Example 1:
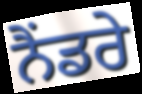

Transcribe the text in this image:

ਨੈਂਡਰੇ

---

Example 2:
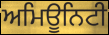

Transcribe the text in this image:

ਅਮਿਊਨਿਟੀ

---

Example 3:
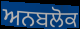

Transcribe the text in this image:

ਅਨਬਲੋਕ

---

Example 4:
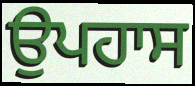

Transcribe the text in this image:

ਉਪਹਾਸ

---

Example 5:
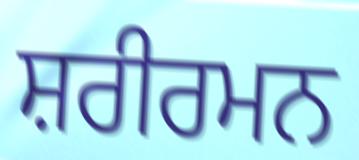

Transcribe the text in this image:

ਸ਼ਰੀਰਮਨ